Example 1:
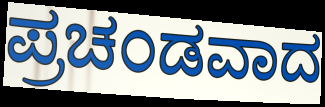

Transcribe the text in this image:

ಪ್ರಚಂಡವಾದ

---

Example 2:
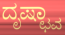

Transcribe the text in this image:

ದೃಷ್ಟ್ವಾ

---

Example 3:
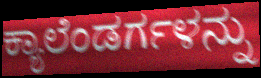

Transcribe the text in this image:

ಕ್ಯಾಲೆಂಡರ್ಗಳನ್ನು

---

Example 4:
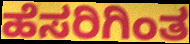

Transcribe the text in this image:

ಹೆಸರಿಗಿಂತ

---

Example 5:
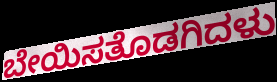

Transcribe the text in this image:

ಬೇಯಿಸತೊಡಗಿದಳು